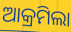
ଆକ୍ରମିଲା